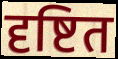
दृष्टित